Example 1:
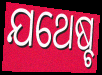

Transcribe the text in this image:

ଯଥେଷ୍ଚ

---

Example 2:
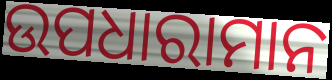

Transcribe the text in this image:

ଉପଧାରାମାନ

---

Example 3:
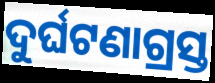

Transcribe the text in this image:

ଦୁର୍ଘଟଣାଗ୍ରସ୍ତ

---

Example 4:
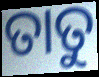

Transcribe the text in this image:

ତାତୁ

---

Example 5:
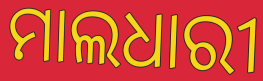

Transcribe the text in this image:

ମାଲଧାରୀ